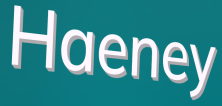
Haeney